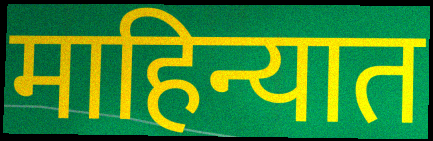
माहिन्यात